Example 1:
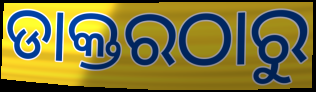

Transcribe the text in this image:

ଡାକ୍ତରଠାରୁ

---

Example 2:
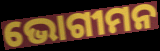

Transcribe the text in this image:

ଭୋଗୀମନ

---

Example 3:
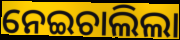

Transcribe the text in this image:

ନେଇଚାଲିଲା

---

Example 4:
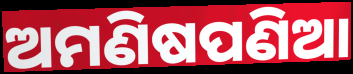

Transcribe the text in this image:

ଅମଣିଷପଣିଆ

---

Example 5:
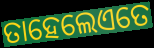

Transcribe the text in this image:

ତାହେଲେଏତେ